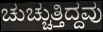
ಚುಚ್ಚುತ್ತಿದ್ದವು